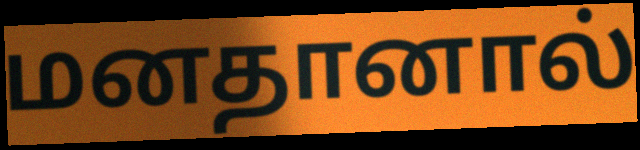
மனதானால்